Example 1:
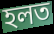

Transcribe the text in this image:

হলত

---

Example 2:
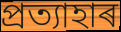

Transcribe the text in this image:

প্ৰত্যাহাৰ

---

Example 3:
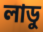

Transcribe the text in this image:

লাডু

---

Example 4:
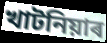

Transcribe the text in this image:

খাটনিয়াৰ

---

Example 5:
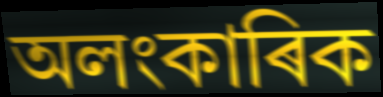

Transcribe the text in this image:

অলংকাৰিক